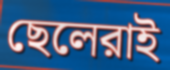
ছেলেরাই